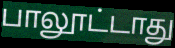
பாலூட்டாது